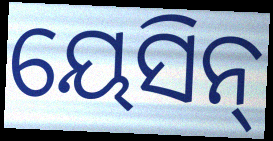
ୟେସିନ୍